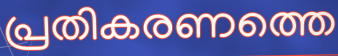
പ്രതികരണത്തെ